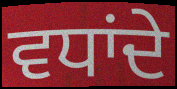
ਵਧਾਂਦੇ